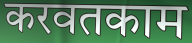
करवतकाम